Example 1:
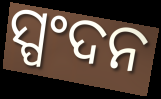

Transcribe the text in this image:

ସ୍ପଂଦନ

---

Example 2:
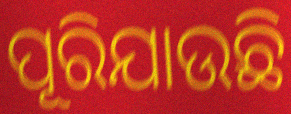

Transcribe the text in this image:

ପୂରିଯାଉଛି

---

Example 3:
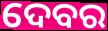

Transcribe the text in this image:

ଦେବର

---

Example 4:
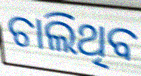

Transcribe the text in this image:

ଚାଲିଥିବ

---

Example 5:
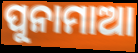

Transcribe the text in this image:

ପୁନାମାଆ